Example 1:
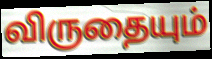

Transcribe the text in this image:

விருதையும்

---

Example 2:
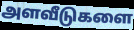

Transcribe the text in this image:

அளவீடுகளை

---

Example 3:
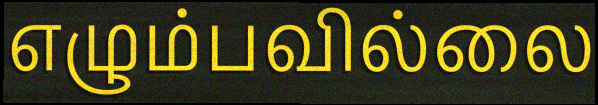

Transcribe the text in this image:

எழும்பவில்லை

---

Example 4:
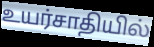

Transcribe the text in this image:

உயர்சாதியில்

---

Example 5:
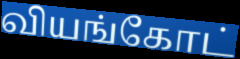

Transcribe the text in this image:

வியங்கோட்